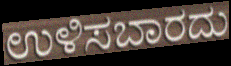
ಉಳಿಸಬಾರದು